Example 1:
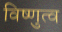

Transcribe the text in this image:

विष्णुत्व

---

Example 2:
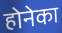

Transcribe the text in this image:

होनेका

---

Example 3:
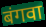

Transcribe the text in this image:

बंगवा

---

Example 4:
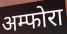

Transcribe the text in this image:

अम्फोरा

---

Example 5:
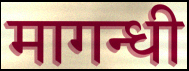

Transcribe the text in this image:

मागन्धी